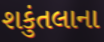
શકુંતલાના